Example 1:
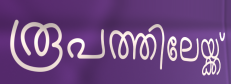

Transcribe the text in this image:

രൂപത്തിലേയ്ക്ക്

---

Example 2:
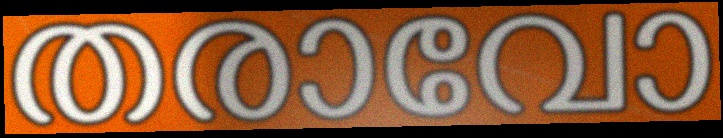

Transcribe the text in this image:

തരാവോ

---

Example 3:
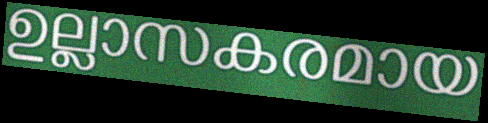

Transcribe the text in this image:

ഉല്ലാസകരമായ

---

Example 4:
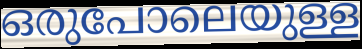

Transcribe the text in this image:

ഒരുപോലെയുള്ള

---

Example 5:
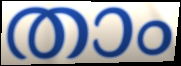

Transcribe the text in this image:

താം